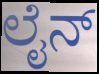
ಲೈನ್